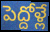
పెద్దోళ్లే